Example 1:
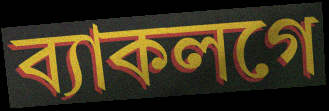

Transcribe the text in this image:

ব্যাকলগে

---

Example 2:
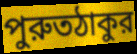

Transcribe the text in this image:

পুরুতঠাকুর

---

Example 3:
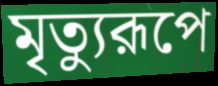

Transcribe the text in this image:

মৃত্যুরূপে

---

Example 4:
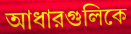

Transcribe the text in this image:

আধারগুলিকে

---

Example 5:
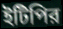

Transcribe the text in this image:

ইটিপির